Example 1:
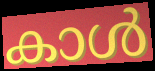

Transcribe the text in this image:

കാൾ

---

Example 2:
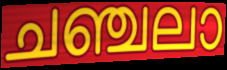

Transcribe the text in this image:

ചഞ്ചലാ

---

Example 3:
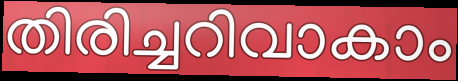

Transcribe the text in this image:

തിരിച്ചറിവാകാം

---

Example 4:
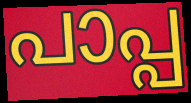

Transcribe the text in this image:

പാപ്പ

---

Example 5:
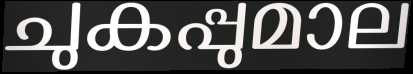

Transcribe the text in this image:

ചുകപ്പുമാല